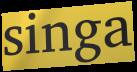
singa